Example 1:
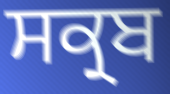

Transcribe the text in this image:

ਸਕ੍ਰਬ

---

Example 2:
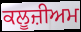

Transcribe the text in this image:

ਕਲੂਜ਼ੀਅਮ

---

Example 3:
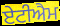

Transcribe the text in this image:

ਏਟੀਐਮ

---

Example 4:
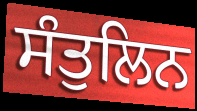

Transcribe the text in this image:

ਸੰਤੁਲਿਨ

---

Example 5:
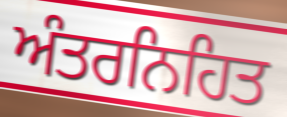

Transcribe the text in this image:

ਅੰਤਰਨਿਹਿਤ